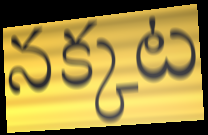
నక్కట